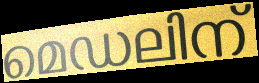
മെഡലിന്